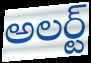
అలర్ట్